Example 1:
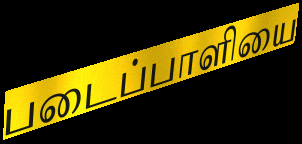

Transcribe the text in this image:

படைப்பாளியை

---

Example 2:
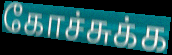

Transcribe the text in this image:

கோச்சுக்க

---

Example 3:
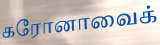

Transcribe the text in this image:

கரோனாவைக்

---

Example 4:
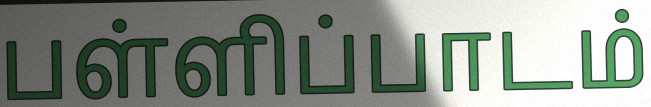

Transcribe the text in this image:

பள்ளிப்பாடம்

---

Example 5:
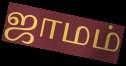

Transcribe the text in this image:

ஜாமம்